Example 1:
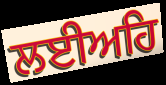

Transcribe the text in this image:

ਲਈਅਹਿ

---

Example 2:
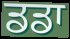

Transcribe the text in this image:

ਡਡਾ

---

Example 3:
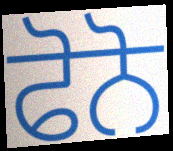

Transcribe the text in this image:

ਫੋਨੋ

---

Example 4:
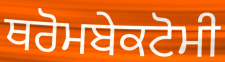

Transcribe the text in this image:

ਥਰੋਮਬੇਕਟੋਮੀ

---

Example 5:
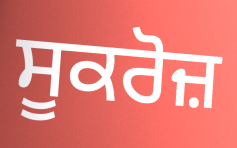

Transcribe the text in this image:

ਸੂਕਰੋਜ਼